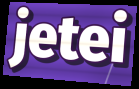
jetei